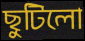
ছুটিলো